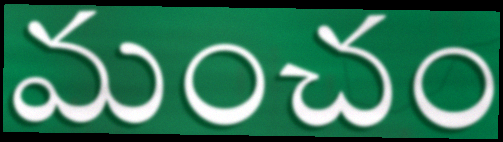
మంచం